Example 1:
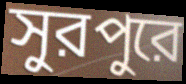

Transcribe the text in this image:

সুরপুরে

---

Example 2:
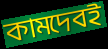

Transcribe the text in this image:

কামদেবই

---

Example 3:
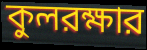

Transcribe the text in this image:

কুলরক্ষার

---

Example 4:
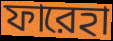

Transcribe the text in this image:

ফারেহা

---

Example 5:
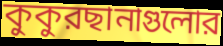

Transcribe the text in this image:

কুকুরছানাগুলোর